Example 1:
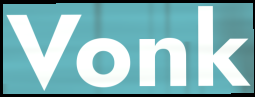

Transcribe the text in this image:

Vonk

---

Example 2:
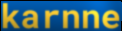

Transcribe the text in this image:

karnne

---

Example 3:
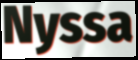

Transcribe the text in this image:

Nyssa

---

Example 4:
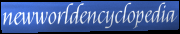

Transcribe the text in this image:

newworldencyclopedia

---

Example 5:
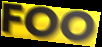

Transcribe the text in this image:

FOO